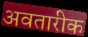
अवतारीक